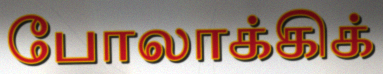
போலாக்கிக்